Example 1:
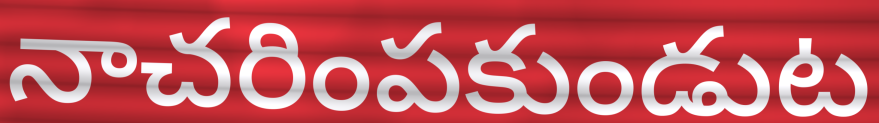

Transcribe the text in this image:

నాచరింపకుండుట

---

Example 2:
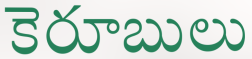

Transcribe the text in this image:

కెరూబులు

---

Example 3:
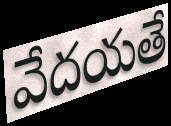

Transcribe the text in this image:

వేదయతే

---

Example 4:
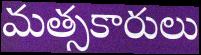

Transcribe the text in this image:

మత్సకారులు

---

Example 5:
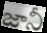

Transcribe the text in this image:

జానీ